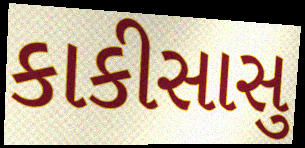
કાકીસાસુ